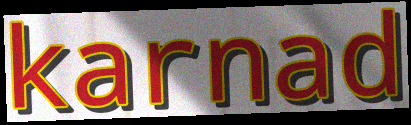
karnad